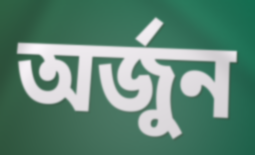
অর্জুন